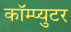
कॉम्प्युटर